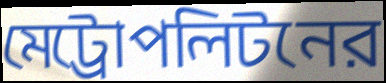
মেট্রোপলিটনের